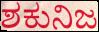
ಶಕುನಿಜ